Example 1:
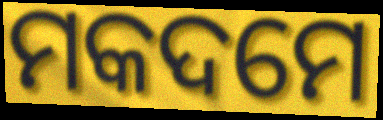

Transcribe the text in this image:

ମକଦମେ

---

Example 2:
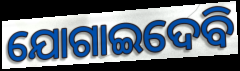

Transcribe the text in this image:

ଯୋଗାଇଦେବି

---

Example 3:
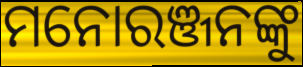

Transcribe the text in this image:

ମନୋରଞ୍ଜନଙ୍କୁ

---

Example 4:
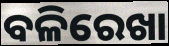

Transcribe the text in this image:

ବଳିରେଖା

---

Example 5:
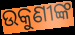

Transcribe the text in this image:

ଉକୁଣୀଙ୍କ